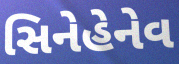
સિનેહેનેવ